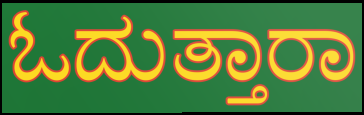
ಓದುತ್ತಾರಾ